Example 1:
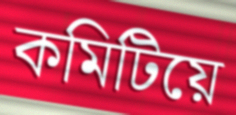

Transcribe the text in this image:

কমিটিয়ে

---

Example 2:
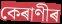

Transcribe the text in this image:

কেৰাণীৰ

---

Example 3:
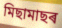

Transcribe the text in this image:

মিছামাছৰ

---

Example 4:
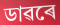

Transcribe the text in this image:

ডাৱৰে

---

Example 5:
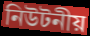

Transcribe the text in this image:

নিউটনীয়